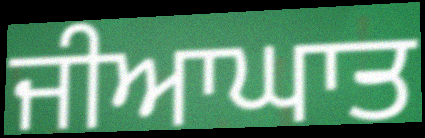
ਜੀਆਘਾਤ